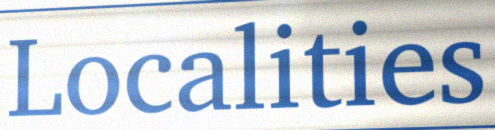
Localities